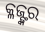
କ୍ଳଜ୍ଙ୍କର